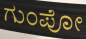
ಗುಂಪೋ